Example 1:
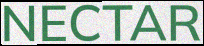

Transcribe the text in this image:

NECTAR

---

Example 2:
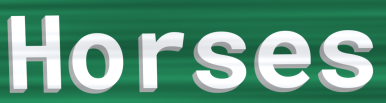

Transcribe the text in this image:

Horses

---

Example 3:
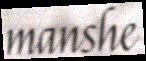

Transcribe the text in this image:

manshe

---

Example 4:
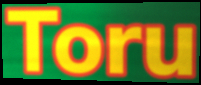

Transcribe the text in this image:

Toru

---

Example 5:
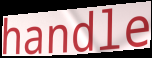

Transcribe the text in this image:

handle